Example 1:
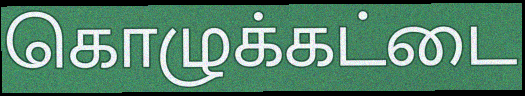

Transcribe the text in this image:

கொழுக்கட்டை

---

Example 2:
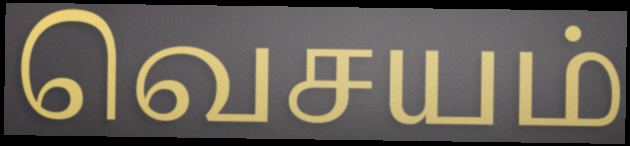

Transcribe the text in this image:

வெசயம்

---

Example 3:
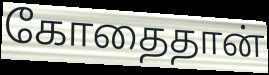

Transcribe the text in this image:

கோதைதான்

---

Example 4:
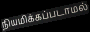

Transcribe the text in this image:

நியமிக்கப்படாமல்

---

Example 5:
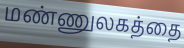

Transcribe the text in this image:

மண்ணுலகத்தை